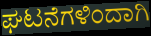
ಘಟನೆಗಳಿಂದಾಗಿ